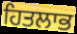
ਹਿਤਲਾਭ